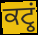
ਕਟ੍ਠਂ